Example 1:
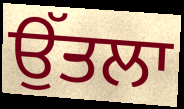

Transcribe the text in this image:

ਉੱਤਲਾ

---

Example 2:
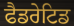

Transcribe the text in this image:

ਫੈਡਰੇਟਿਡ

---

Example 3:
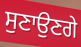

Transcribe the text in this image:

ਸੁਣਾਉਣਗੇ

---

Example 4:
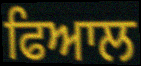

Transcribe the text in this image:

ਫਿਆਲ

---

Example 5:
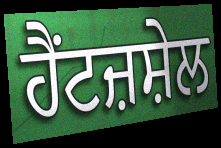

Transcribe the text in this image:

ਹੈਂਟਜ਼ਸ਼ੇਲ